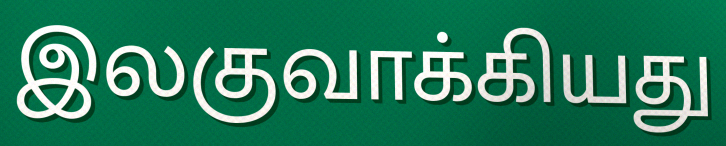
இலகுவாக்கியது